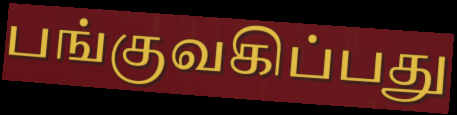
பங்குவகிப்பது